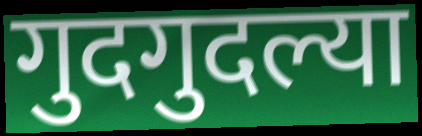
गुदगुदल्या